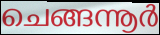
ചെങ്ങന്നൂർ